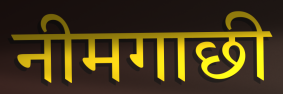
नीमगाछी